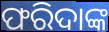
ଫରିଦାଙ୍କ